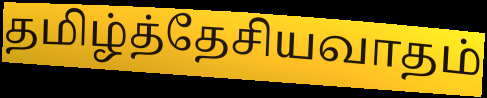
தமிழ்த்தேசியவாதம்